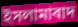
ইসলামাবাদ